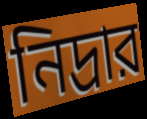
নিদ্রার